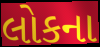
લોકના